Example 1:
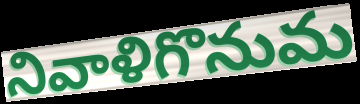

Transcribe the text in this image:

నివాళిగొనుమ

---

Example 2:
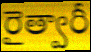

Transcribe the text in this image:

రైత్వారీ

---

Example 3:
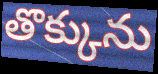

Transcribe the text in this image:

తొక్కును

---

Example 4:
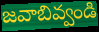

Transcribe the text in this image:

జవాబివ్వండి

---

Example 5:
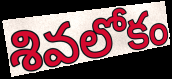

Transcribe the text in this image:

శివలోకం